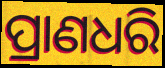
ପ୍ରାଣଧରି